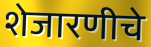
शेजारणीचे